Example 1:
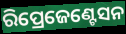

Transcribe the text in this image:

ରିପ୍ରେଜେଣ୍ଟେସନ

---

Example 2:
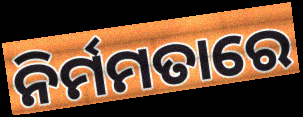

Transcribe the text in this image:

ନିର୍ମମତାରେ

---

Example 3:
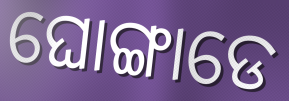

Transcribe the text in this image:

ଘୋଙ୍ଗାଡେ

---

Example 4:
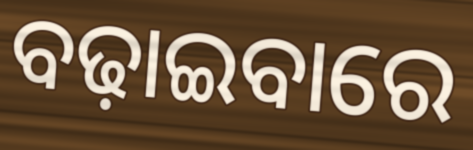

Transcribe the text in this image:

ବଢ଼ାଇବାରେ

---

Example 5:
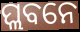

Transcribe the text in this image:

ପ୍ଲବନେ